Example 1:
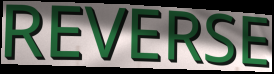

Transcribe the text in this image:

REVERSE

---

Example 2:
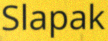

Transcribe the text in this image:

Slapak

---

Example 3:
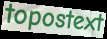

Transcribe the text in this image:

topostext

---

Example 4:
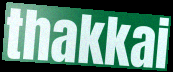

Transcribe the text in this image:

thakkai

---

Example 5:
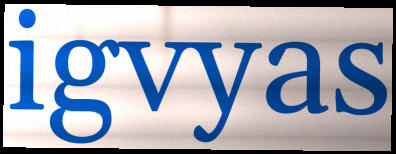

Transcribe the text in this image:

igvyas